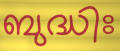
ബുദ്ധിഃ